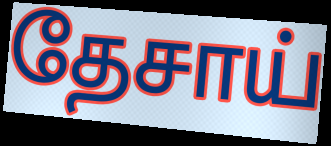
தேசாய்